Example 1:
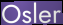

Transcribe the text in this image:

Osler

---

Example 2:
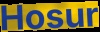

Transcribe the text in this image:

Hosur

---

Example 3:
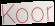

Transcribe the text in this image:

Koor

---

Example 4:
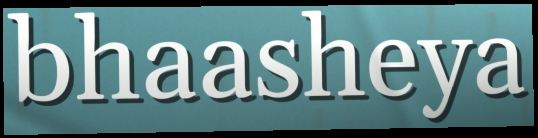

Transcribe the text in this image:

bhaasheya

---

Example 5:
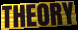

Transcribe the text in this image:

THEORY